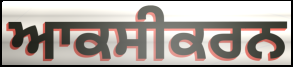
ਆਕਸੀਕਰਨ